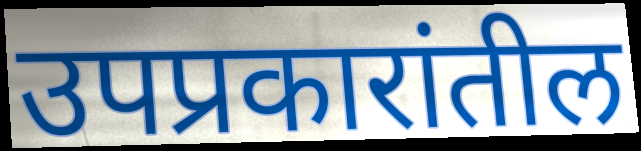
उपप्रकारांतील